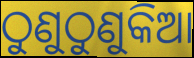
ଠୁଣୁଠୁଣୁକିଆ